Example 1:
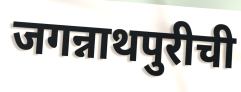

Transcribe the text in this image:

जगन्नाथपुरीची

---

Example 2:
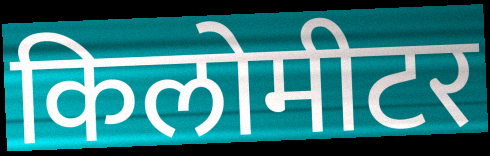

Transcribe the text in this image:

किलोमीटर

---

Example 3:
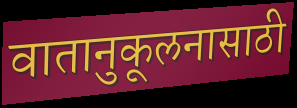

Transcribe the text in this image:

वातानुकूलनासाठी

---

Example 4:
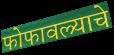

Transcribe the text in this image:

फोफावल्याचे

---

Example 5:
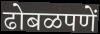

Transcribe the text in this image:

ढोबळपणें